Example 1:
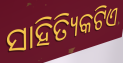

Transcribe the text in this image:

ସାହିତ୍ୟିକଟିଏ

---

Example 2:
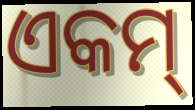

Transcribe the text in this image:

ଏକମ୍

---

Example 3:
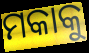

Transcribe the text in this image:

ମକାକୁ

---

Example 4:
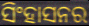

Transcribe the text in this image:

ସିଂହାସନର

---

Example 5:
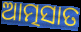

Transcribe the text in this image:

ଆତ୍ମସାତ